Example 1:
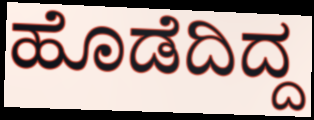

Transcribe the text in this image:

ಹೊಡೆದಿದ್ದ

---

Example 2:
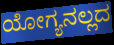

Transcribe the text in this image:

ಯೋಗ್ಯನಲ್ಲದ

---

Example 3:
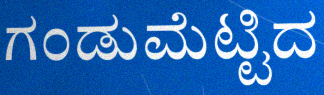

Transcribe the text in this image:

ಗಂಡುಮೆಟ್ಟಿದ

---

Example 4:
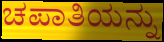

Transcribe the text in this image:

ಚಪಾತಿಯನ್ನು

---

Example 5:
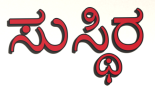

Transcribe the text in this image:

ಸುಸ್ಥಿರ